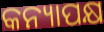
କନ୍ଯାପକ୍ଷ